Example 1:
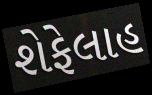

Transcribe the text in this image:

શેફેલાહ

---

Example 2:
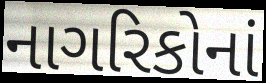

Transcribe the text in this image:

નાગરિકોનાં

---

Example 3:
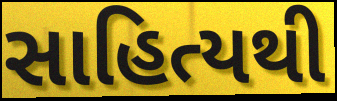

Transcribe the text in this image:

સાહિત્યથી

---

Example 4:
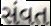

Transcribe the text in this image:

સંવત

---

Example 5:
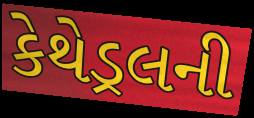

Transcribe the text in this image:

કેથેડ્રલની